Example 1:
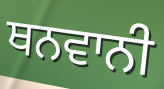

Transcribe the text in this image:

ਥਨਵਾਨੀ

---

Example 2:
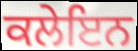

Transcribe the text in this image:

ਕਲੇਇਨ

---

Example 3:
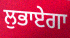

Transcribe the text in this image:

ਲੁਭਾਏਗਾ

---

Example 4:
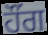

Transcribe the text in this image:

ਹੌਂਗ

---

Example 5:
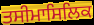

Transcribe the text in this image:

ਤਸੀਮਾਸਿਲਿਕ